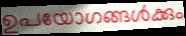
ഉപയോഗങ്ങൾക്കും